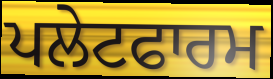
ਪਲੇਟਫਾਰਮ